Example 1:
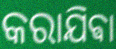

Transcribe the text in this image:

କରାଯିଵା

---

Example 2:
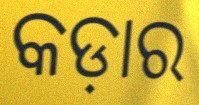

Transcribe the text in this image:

କଡ଼ାର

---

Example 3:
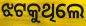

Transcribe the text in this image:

ଝଟକୁଥିଲେ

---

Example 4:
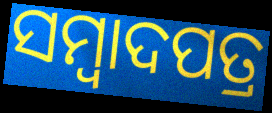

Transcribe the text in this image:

ସମ୍ୱାଦପତ୍ର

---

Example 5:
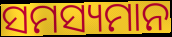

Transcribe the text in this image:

ସମସ୍ୟମାନ